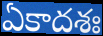
ఏకాదశః